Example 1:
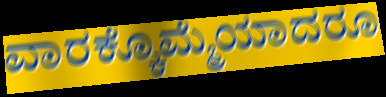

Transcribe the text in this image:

ವಾರಕ್ಕೊಮ್ಮೆಯಾದರೂ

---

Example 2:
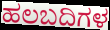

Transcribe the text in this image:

ಹಲಬದಿಗಳ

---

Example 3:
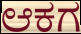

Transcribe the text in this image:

ಆಕಗ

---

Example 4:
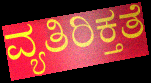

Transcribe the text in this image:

ವ್ಯತಿರಿಕ್ತತೆ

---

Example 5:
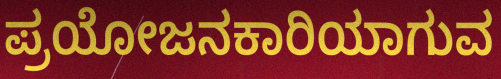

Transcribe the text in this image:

ಪ್ರಯೋಜನಕಾರಿಯಾಗುವ